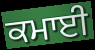
ਕਮਾਈ